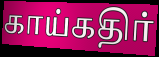
காய்கதிர்